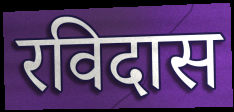
रविदास